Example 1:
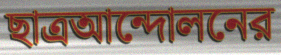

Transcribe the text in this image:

ছাত্রআন্দোলনের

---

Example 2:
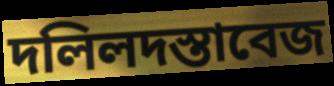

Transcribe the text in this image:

দলিলদস্তাবেজ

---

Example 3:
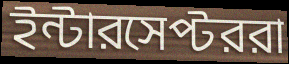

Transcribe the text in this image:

ইন্টারসেপ্টররা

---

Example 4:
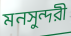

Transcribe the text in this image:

মনসুন্দরী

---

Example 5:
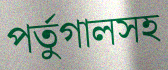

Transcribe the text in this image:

পর্তুগালসহ